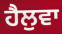
ਹੈਲੁਵਾ